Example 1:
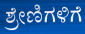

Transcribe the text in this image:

ಶ್ರೇಣಿಗಳಿಗೆ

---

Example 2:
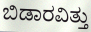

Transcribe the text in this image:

ಬಿಡಾರವಿತ್ತು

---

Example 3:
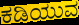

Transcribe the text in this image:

ಕಡಿಯುವ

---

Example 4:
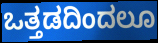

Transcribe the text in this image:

ಒತ್ತಡದಿಂದಲೂ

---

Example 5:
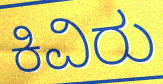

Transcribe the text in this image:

ಕಿವಿರು